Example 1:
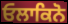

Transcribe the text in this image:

ਓਲਾਕਿਨੋ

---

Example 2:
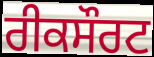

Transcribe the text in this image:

ਰੀਕਸੌਰਟ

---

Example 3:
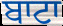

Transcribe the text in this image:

ਬਾਟਾ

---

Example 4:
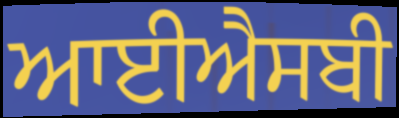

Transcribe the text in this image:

ਆਈਐਸਬੀ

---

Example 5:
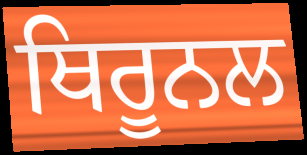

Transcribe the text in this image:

ਥਿਰੂਨਲ